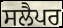
ਸਲੈਪਰ